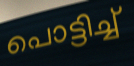
പൊട്ടിച്ച്